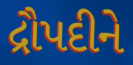
દ્રૌપદીને